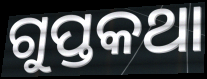
ଗୁପ୍ତକଥା